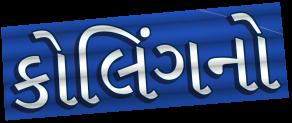
કોલિંગનો